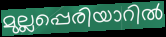
മുല്ലപ്പെരിയാറിൽ